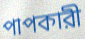
পাপকারী